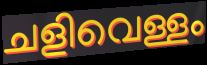
ചളിവെള്ളം